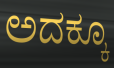
ಅದಕ್ಕೂ